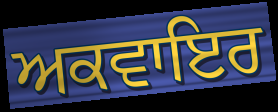
ਅਕਵਾਇਰ